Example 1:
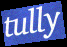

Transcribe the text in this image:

tully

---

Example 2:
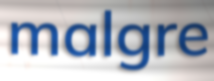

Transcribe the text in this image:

malgre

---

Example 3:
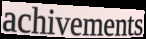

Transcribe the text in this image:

achivements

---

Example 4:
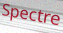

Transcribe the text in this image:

Spectre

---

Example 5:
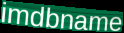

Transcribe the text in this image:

imdbname